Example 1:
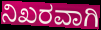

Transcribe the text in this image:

ನಿಖರವಾಗಿ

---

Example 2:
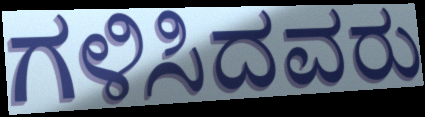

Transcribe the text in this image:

ಗಳಿಸಿದವರು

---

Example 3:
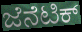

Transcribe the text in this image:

ಜೆನೆಟಿಕ್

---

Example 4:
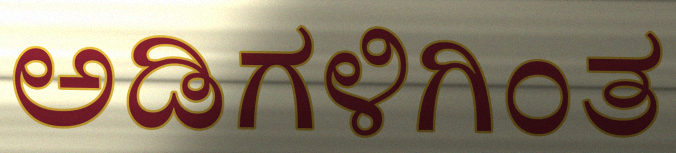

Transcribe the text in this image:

ಅಡಿಗಳಿಗಿಂತ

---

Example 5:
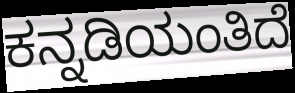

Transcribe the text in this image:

ಕನ್ನಡಿಯಂತಿದೆ